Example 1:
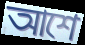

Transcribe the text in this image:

আশে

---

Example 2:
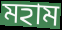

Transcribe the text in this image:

মহাম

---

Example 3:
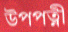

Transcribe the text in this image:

উপপত্নী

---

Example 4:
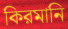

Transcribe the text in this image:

কিরমানি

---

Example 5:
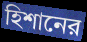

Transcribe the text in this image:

হিশানের